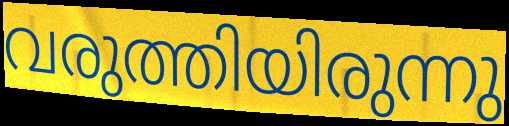
വരുത്തിയിരുന്നു